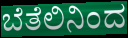
ಬೆತೆಲಿನಿಂದ